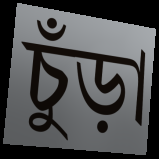
চুঁড়া